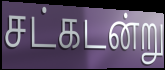
சட்கடன்று